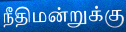
நீதிமன்றுக்கு